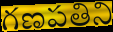
గణపతిని